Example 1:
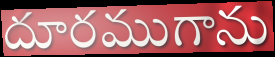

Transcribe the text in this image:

దూరముగాను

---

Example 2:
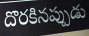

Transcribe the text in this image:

దొరకినప్పుడు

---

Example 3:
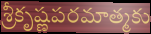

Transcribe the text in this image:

శ్రీకృష్ణపరమాత్మకు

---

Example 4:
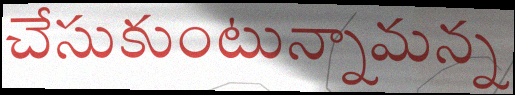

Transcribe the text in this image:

చేసుకుంటున్నామన్న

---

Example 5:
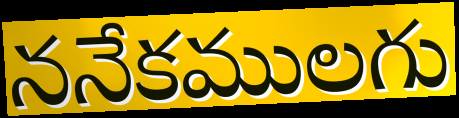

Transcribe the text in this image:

ననేకములగు